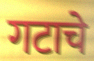
गटाचे